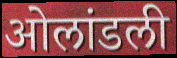
ओलांडली